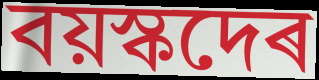
বয়স্কদেৰ